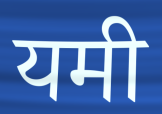
यमी